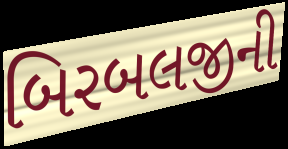
બિરબલજીની